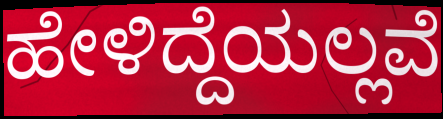
ಹೇಳಿದ್ದೆಯಲ್ಲವೆ